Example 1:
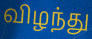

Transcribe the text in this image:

விழந்து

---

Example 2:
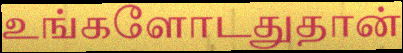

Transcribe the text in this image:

உங்களோடதுதான்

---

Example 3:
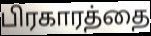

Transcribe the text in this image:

பிரகாரத்தை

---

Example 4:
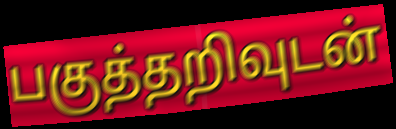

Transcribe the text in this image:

பகுத்தறிவுடன்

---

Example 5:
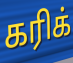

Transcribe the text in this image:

கரிக்